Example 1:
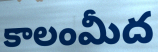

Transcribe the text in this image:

కాలంమీద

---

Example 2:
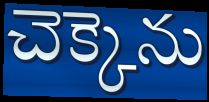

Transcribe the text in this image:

చెక్కెను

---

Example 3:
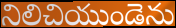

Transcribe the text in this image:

నిలిచియుండెను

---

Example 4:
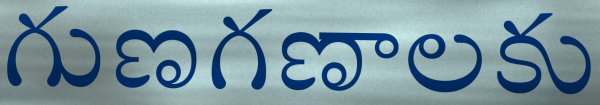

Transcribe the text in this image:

గుణగణాలకు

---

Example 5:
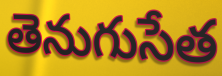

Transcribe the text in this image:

తెనుగుసేత